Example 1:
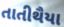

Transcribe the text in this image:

તાતીથૈયા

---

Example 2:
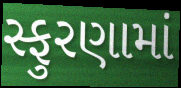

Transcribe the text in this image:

સ્ફુરણામાં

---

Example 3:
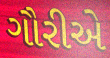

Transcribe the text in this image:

ગૌરીએ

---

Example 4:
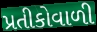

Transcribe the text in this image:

પ્રતીકોવાળી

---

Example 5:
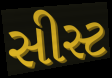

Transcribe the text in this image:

સીસ્ટ